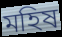
মহিষ